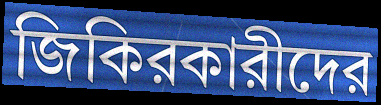
জিকিরকারীদের